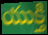
యుక్తి